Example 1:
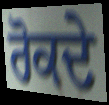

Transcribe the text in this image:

ਰੋਕਦੇ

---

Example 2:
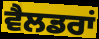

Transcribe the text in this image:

ਵੈਲਡਰਾਂ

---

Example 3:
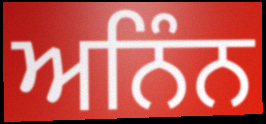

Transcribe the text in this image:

ਅਨਿੰਨ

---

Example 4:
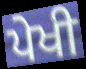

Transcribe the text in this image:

ਪੇਖੀ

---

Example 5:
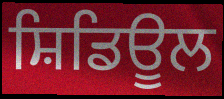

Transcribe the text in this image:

ਸ਼ਿਡਿਊਲ